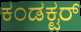
ಕಂಡಕ್ಟರ್